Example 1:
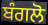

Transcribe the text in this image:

ਬੰਗਲੋ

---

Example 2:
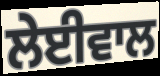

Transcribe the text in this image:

ਲੇਈਵਾਲ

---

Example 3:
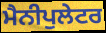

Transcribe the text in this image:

ਮੈਨੀਪੁਲੇਟਰ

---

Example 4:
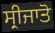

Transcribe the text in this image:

ਸ੍ਰੀਜਾਤੋ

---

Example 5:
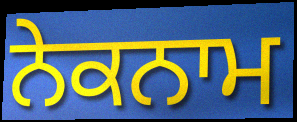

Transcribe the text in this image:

ਨੇਕਨਾਮ